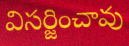
విసర్జించావు